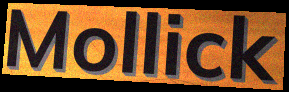
Mollick